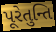
પૂરેતુન્તિ